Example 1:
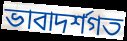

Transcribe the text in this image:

ভাবাদৰ্শগত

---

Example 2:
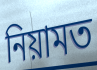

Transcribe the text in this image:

নিয়ামত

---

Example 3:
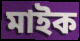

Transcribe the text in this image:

মাইক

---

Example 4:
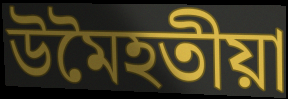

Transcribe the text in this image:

উমৈহতীয়া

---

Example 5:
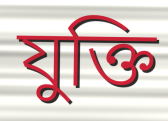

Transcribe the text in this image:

যুক্তি